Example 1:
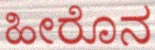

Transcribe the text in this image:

ಹೀರೊನ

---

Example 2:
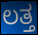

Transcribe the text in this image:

ಲತ್ತ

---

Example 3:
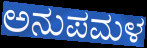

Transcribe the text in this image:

ಅನುಪಮಳ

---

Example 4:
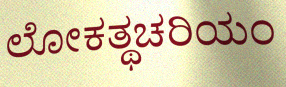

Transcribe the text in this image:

ಲೋಕತ್ಥಚರಿಯಂ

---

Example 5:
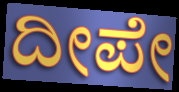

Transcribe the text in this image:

ದೀಪೇ